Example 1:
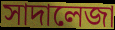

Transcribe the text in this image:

সাদালেজা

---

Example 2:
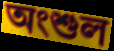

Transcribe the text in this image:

অংশুল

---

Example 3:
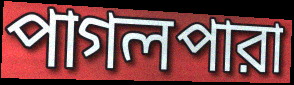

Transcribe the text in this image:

পাগলপারা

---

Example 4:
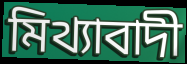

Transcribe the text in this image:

মিথ্যাবাদী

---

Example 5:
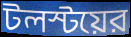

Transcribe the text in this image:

টলস্টয়ের